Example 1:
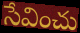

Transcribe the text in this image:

సేవించు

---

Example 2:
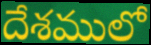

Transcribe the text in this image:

దేశములో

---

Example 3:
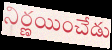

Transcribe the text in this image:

నిర్ణయించేడు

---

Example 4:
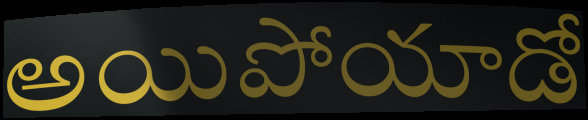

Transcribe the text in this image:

అయిపోయాడో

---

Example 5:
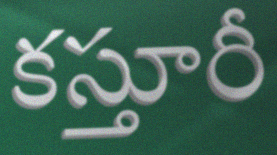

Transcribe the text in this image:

కస్తూరీ